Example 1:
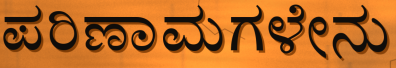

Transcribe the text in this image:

ಪರಿಣಾಮಗಳೇನು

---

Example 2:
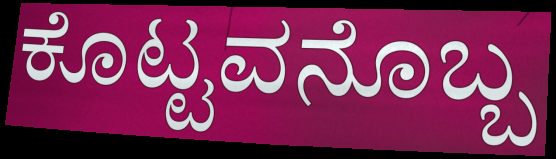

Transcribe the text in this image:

ಕೊಟ್ಟವನೊಬ್ಬ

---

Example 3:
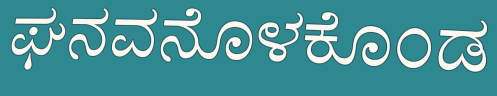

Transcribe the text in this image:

ಘನವನೊಳಕೊಂಡ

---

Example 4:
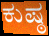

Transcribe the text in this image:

ಕುಷ್ಠ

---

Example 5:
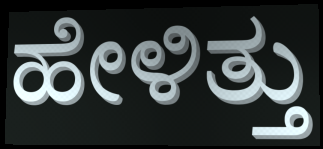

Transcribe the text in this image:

ಹೇಳಿತ್ತು